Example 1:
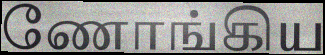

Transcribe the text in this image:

ணோங்கிய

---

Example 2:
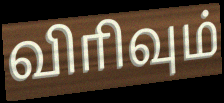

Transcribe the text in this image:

விரிவும்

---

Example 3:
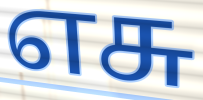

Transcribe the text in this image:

எசு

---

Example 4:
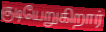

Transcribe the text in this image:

குடியேறுகிறார்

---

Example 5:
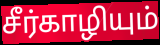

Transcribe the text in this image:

சீர்காழியும்